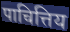
पाचित्तिय